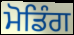
ਮੋਡਿੰਗ